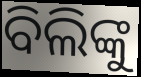
ବିଲିଙ୍କୁ